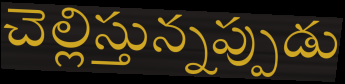
చెల్లిస్తున్నప్పుడు